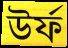
উৰ্ফ